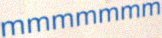
mmmmmmm